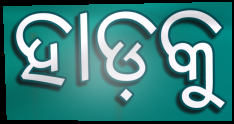
ହାଡ଼କୁ